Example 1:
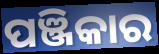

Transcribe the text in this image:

ପଞ୍ଜିକାର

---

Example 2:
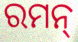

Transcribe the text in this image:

ରମନ୍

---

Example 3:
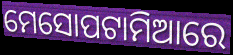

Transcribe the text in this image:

ମେସୋପଟାମିଆରେ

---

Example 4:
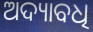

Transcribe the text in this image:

ଅଦ୍ୟାବଧି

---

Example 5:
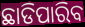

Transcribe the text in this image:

ଛାଡିପାରିବ